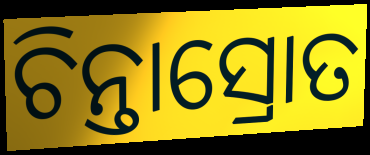
ଚିନ୍ତାସ୍ରୋତ